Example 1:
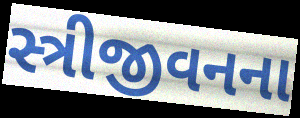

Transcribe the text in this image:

સ્ત્રીજીવનના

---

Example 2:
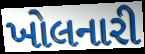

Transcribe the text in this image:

ખોલનારી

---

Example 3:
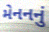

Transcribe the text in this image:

મેનનનું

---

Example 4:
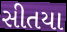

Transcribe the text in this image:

સીતયા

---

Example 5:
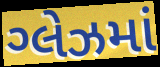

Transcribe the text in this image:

ગ્લેઝમાં